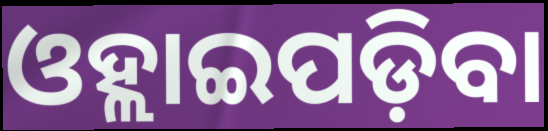
ଓହ୍ଲାଇପଡ଼ିବା